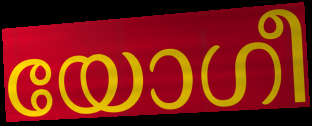
യോഗീ